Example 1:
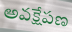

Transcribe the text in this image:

అవక్షేపణ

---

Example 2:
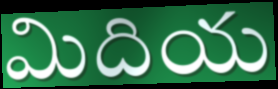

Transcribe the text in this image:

మిదియ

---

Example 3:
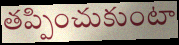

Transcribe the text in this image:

తప్పించుకుంటా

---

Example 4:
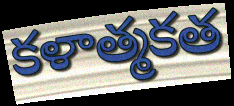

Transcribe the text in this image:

కళాత్మకత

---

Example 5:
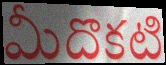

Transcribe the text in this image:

మీదొకటి